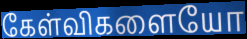
கேள்விகளையோ